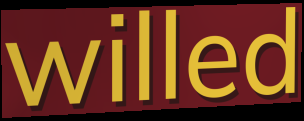
willed